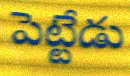
పెట్టేడు